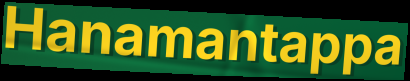
Hanamantappa